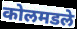
कोलमडले